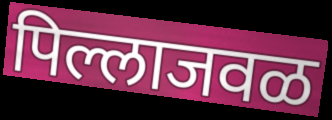
पिल्लाजवळ